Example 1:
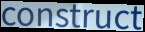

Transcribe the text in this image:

construct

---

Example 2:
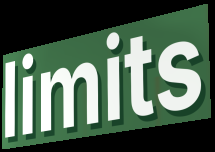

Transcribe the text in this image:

limits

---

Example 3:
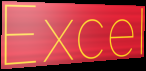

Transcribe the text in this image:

Excel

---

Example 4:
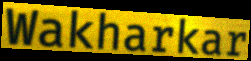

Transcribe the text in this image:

Wakharkar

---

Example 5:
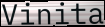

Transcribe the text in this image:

Vinita